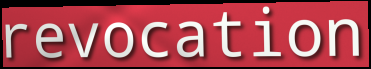
revocation